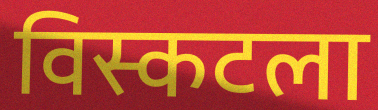
विस्कटला